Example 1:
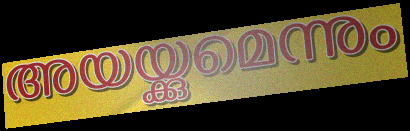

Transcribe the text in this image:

അയയ്ക്കുമെന്നും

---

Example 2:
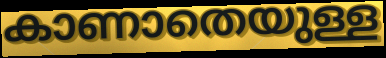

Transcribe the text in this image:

കാണാതെയുള്ള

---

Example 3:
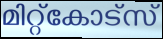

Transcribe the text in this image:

മിറ്റ്കോട്സ്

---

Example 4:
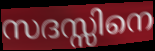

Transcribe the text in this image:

സദസ്സിനെ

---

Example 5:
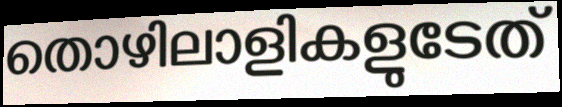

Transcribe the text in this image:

തൊഴിലാളികളുടേത്